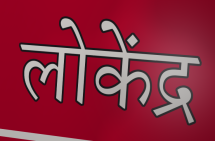
लोकेंद्र